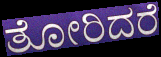
ತೋರಿದರೆ